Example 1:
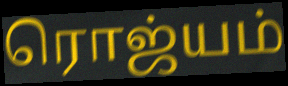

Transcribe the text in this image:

ரொஜ்யம்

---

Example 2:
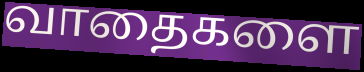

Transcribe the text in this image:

வாதைகளை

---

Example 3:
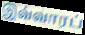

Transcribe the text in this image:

இவ்வாரப்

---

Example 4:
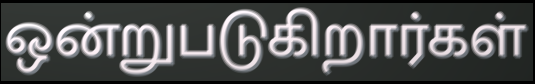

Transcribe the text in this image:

ஒன்றுபடுகிறார்கள்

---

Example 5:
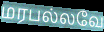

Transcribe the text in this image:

மரபல்லவே